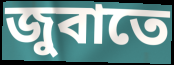
জুবাতে